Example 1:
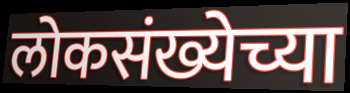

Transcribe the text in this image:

लोकसंख्‍येच्‍या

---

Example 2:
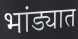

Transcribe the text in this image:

भांड्यात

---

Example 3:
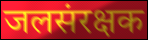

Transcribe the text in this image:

जलसंरक्षक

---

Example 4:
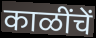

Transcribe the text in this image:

काळींचें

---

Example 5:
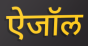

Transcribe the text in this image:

ऐजॉल